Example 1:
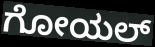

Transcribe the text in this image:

ಗೋಯಲ್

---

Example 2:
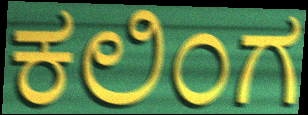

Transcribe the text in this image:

ಕಲಿಂಗ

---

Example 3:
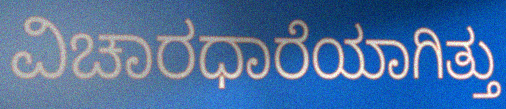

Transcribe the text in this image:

ವಿಚಾರಧಾರೆಯಾಗಿತ್ತು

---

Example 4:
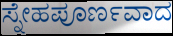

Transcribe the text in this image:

ಸ್ನೇಹಪೂರ್ಣವಾದ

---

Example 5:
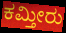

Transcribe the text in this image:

ಕಮ್ತೀರು